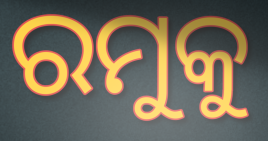
ରମୁକୁ